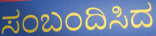
ಸಂಬಂದಿಸಿದ